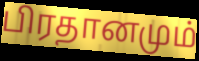
பிரதானமும்